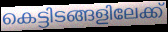
കെട്ടിടങ്ങളിലേക്ക്